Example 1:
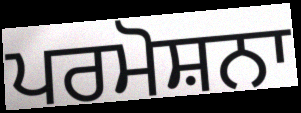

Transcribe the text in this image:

ਪਰਮੋਸ਼ਨਾ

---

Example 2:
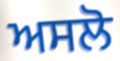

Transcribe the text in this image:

ਅਸਲੋ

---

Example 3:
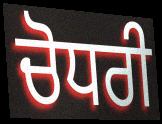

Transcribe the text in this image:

ਚੋਧਰੀ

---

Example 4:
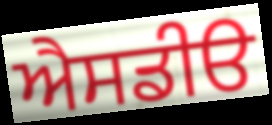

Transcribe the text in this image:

ਐਸਡੀੳ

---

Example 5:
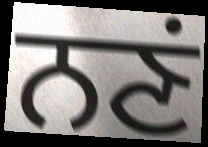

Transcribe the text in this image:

ਨਣਂ